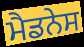
ਮੈਡਨੇਸ